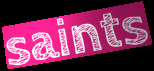
saints